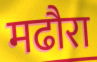
मढौरा